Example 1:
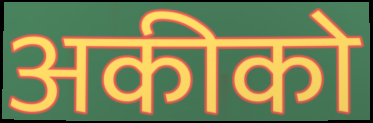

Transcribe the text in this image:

अकीको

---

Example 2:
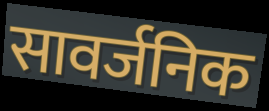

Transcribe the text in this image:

सावर्जनिक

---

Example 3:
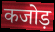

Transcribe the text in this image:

कजोड़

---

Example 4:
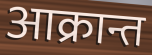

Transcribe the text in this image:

आक्रान्त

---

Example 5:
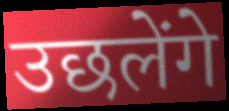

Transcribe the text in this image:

उछलेंगे